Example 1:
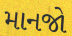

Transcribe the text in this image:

માનજો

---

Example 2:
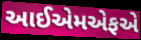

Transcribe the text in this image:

આઈએમએફએ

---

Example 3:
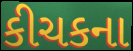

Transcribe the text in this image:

કીચકના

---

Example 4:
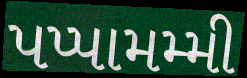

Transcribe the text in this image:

પપ્પામમ્મી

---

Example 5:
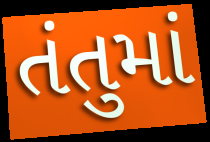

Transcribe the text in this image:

તંતુમાં